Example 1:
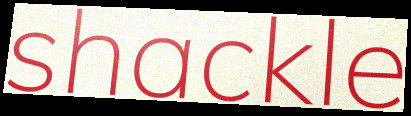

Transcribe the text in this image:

shackle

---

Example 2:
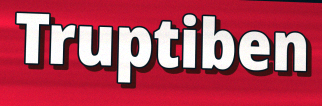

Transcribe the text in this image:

Truptiben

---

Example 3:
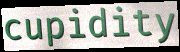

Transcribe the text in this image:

cupidity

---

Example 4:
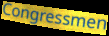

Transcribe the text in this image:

Congressmen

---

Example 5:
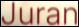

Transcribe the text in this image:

Juran